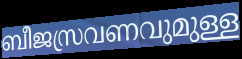
ബീജസ്രവണവുമുള്ള